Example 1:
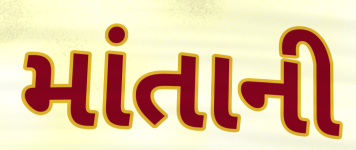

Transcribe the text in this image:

માંતાની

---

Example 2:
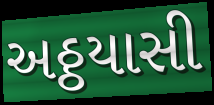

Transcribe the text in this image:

અઠ્ઠયાસી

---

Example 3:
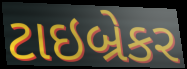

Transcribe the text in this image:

ટાઇબ્રેકર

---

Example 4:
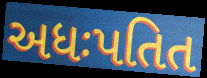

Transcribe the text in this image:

અધઃપતિત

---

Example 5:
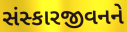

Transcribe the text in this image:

સંસ્કારજીવનને